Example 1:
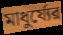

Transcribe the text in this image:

মাধুর্য্যের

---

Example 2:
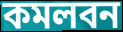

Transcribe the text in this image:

কমলবন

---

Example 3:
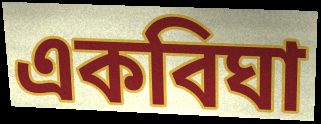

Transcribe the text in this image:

একবিঘা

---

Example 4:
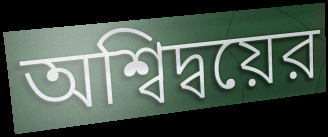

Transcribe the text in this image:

অশ্বিদ্বয়ের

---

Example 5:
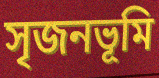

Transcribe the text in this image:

সৃজনভূমি